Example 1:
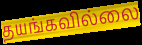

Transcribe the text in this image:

தயங்கவில்லை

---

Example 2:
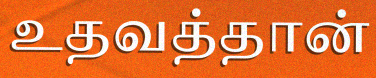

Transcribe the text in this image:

உதவத்தான்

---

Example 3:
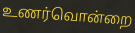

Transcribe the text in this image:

உணர்வொன்றை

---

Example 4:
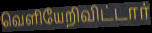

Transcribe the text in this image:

வெளியேறிவிட்டார்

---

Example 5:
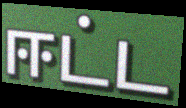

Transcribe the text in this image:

ஈட்ட